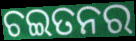
ଚଇତନର